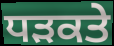
ਧੜਕਤੇ